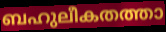
ബഹുലീകതത്താ